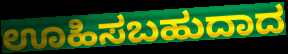
ಊಹಿಸಬಹುದಾದ